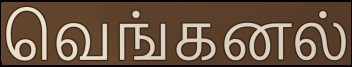
வெங்கனல்